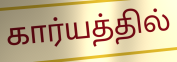
கார்யத்தில்